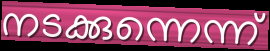
നടക്കുന്നെന്ന്